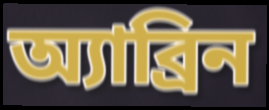
অ্যাব্রিন